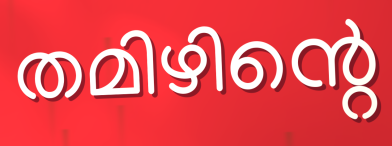
തമിഴിന്റെ